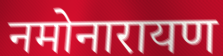
नमोनारायण